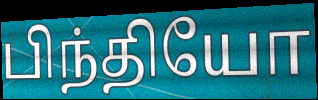
பிந்தியோ